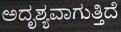
ಅದೃಶ್ಯವಾಗುತ್ತಿದೆ